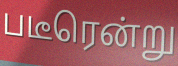
படீரென்று